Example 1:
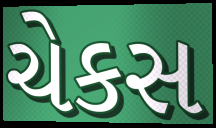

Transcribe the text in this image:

ચેકસ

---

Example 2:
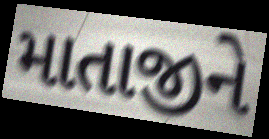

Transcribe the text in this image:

માતાજીને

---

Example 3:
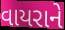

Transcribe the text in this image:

વાયરાને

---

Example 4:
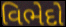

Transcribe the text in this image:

વિભેદો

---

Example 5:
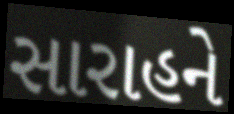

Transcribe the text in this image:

સારાહને